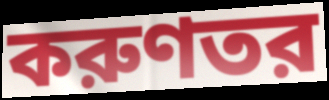
করুণতর